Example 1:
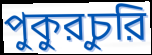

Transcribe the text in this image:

পুকুরচুরি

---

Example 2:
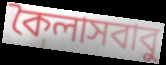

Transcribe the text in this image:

কৈলাসবাবু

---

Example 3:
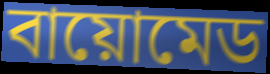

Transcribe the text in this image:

বায়োমেড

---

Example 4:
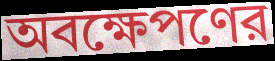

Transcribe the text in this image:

অবক্ষেপণের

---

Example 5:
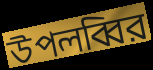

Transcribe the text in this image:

উপলব্বির